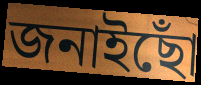
জনাইছোঁ